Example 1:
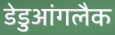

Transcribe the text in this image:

डेडुआंगलैक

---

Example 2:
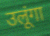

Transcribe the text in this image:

उलूंगा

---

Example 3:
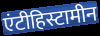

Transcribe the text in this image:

एंटीहिस्टामीन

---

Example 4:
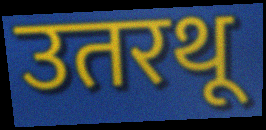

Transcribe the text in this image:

उतरथू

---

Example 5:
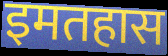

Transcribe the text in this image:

इमतहास